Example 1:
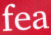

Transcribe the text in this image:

fea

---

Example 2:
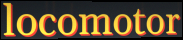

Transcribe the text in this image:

locomotor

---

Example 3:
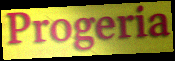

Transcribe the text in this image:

Progeria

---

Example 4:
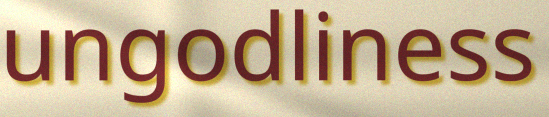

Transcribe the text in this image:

ungodliness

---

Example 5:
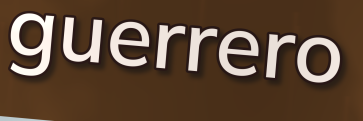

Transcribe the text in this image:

guerrero